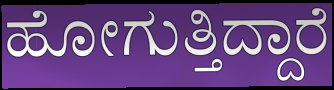
ಹೋಗುತ್ತಿದ್ದಾರೆ